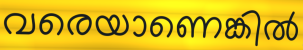
വരെയാണെങ്കിൽ